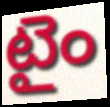
టైం